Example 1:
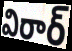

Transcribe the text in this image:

విరార్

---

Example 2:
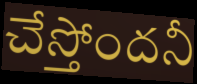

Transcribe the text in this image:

చేస్తోందనీ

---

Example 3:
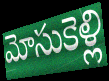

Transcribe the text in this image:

మోసుకెళ్లి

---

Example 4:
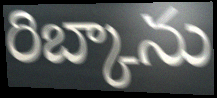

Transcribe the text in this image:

రిబ్కాను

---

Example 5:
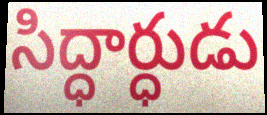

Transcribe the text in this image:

సిద్ధార్ధుడు